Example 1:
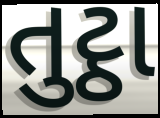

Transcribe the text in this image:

તુટ્ઠા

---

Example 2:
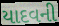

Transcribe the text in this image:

યાદવની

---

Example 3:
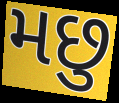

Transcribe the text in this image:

મછુ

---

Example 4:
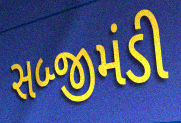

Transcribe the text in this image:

સબ્જીમંડી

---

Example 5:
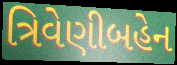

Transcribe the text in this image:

ત્રિવેણીબહેન